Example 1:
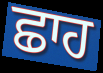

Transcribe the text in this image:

ਛਾਹ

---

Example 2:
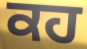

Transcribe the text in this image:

ਕਹ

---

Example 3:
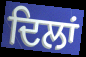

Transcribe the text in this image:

ਦਿਲਾਂ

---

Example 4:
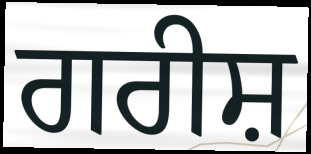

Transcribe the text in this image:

ਗਰੀਸ਼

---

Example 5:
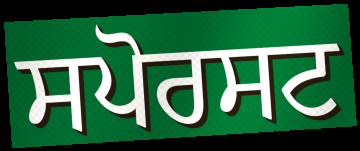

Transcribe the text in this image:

ਸਪੋਰਸਟ